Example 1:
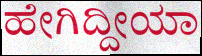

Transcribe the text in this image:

ಹೇಗಿದ್ದೀಯಾ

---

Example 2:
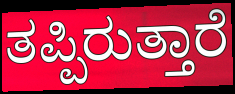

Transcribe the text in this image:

ತಪ್ಪಿರುತ್ತಾರೆ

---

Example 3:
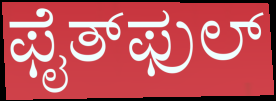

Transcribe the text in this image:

ಫೈತ್‌ಫುಲ್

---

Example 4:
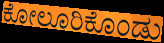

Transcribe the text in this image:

ಕೋಲೂರಿಕೊಂಡು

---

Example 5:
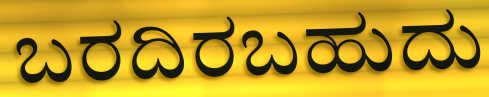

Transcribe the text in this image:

ಬರದಿರಬಹುದು